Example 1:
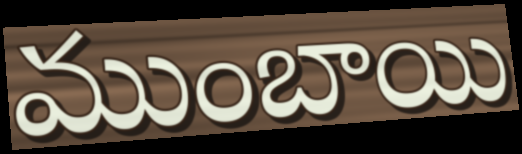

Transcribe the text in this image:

ముంబాయి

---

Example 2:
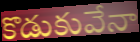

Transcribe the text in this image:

కొడుకువేనా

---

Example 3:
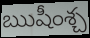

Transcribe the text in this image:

ఋషీంశ్చ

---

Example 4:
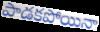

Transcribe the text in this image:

పాడకపోయినా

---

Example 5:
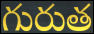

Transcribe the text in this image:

గురుత